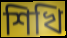
শিখি